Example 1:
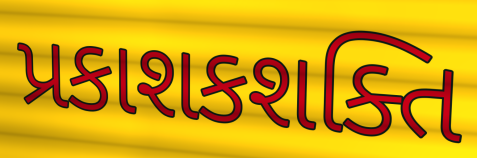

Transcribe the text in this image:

પ્રકાશકશક્તિ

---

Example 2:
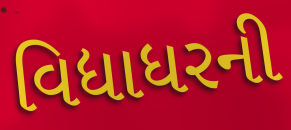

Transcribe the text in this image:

વિદ્યાધરની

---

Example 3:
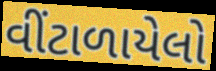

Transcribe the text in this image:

વીંટાળાયેલો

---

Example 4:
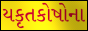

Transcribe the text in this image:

યકૃતકોષોના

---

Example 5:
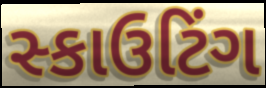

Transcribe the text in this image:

સ્કાઉટિંગ